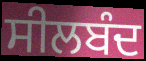
ਸੀਲਬੰਦ